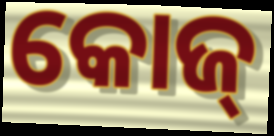
କୋଜ୍